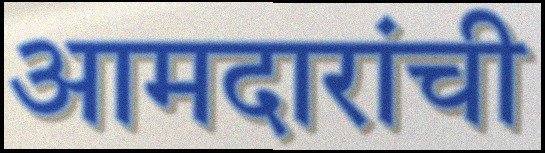
आमदारांची